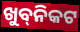
ଖୁବ୍‌ନିକଟ